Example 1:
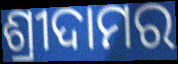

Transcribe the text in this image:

ଶ୍ରୀଦାମର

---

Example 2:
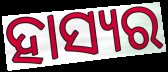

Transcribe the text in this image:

ହାସ୍ୟର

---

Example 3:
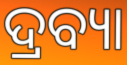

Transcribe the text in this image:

ଦ୍ରବ୍ୟା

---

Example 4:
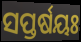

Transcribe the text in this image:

ସପ୍ତର୍ଷୟଃ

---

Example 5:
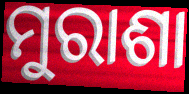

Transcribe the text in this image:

ମୁରାଶା